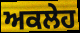
ਅਕਲੇਹ